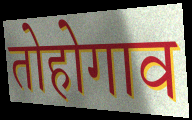
तोहोगाव